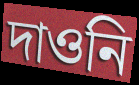
দাওনি